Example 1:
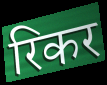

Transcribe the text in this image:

रिकर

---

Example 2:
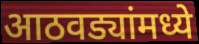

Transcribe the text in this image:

आठवड्यांमध्ये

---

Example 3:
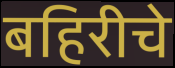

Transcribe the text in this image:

बहिरीचे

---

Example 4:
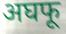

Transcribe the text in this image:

अघफू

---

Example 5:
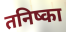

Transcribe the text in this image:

तनिष्का